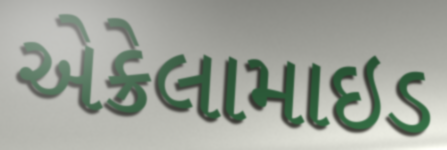
એક્રેલામાઇડ